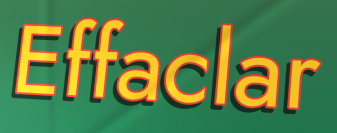
Effaclar